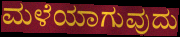
ಮಳೆಯಾಗುವುದು